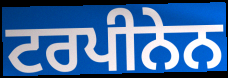
ਟਰਪੀਨੇਨ